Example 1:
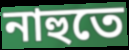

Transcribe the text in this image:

নাহুতে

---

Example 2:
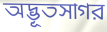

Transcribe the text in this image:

অদ্ভূতসাগর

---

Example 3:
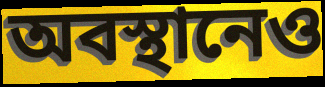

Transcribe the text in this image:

অবস্থানেও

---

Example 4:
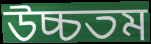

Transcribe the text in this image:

উচ্চতম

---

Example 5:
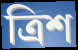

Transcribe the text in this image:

ত্রিশ